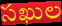
సఖుల